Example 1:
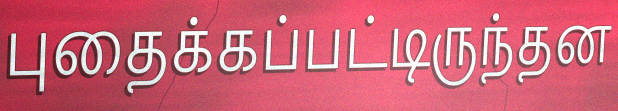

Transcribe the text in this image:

புதைக்கப்பட்டிருந்தன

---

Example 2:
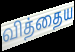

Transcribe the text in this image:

வித்தைய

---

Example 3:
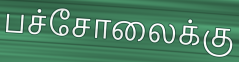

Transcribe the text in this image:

பச்சோலைக்கு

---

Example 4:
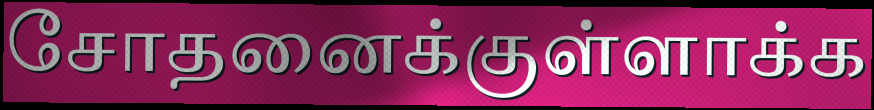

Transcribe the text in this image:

சோதனைக்குள்ளாக்க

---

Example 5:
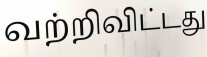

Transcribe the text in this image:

வற்றிவிட்டது